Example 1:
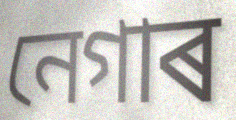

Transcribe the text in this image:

নেগাৰ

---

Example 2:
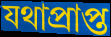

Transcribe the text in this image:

যথাপ্ৰাপ্ত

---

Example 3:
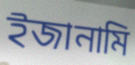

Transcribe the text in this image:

ইজানামি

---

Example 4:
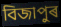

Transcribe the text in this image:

বিজাপুৰ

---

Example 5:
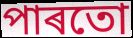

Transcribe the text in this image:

পাৰতো